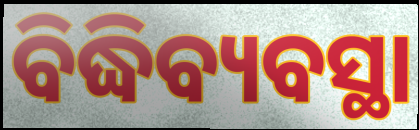
ବିଦ୍ଧିବ୍ୟବସ୍ଥା